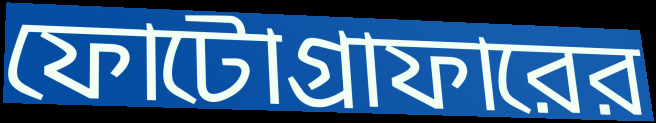
ফোটোগ্রাফারের